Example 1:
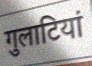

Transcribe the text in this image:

गुलाटियां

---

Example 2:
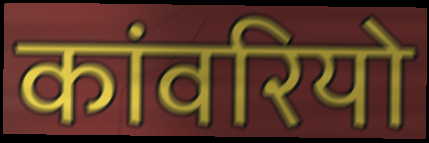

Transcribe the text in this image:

कांवरियो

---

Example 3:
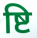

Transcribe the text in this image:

ष्टि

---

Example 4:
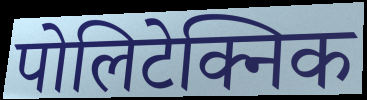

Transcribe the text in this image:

पोलिटेक्निक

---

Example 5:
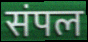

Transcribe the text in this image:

संपल